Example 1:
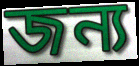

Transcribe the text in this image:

জন্য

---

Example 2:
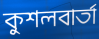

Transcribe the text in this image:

কুশলবার্তা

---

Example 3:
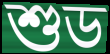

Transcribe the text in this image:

শুড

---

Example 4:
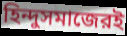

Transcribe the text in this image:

হিন্দুসমাজেরই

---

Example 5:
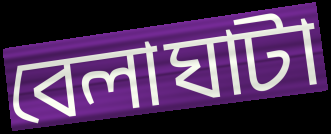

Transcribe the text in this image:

বেলাঘাটা